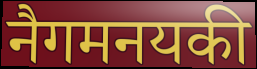
नैगमनयकी